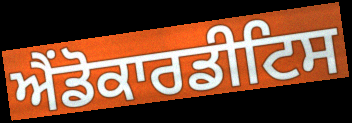
ਐਂਡੋਕਾਰਡੀਟਿਸ